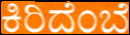
ಕಿರಿದೆಂಬೆ